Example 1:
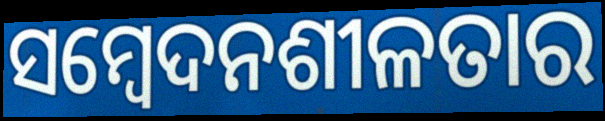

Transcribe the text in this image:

ସମ୍ୱେଦନଶୀଳତାର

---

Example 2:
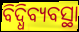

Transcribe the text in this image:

ବିଦ୍ଧିବ୍ୟବସ୍ଥା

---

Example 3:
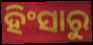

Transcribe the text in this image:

ହିଂସାରୁ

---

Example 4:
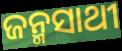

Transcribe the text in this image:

ଜନ୍ମସାଥୀ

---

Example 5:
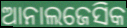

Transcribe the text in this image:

ଆନାଲଜେସିକ